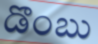
డొంబు